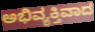
ಅಭಿವ್ಯಕ್ತಿವಾದ